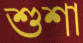
শুশা